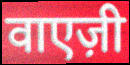
वाएज़ी